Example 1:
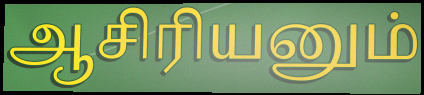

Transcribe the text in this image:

ஆசிரியனும்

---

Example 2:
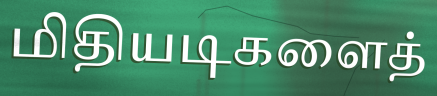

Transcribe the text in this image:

மிதியடிகளைத்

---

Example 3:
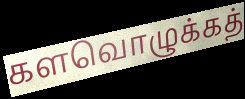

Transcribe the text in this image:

களவொழுக்கத்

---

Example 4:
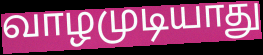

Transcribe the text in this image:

வாழமுடியாது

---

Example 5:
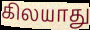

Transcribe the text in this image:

கிலயாது